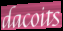
dacoits